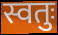
स्वतुः